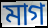
মাগ